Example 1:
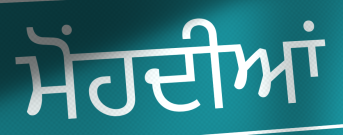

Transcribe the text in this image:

ਮੋਂਹਦੀਆਂ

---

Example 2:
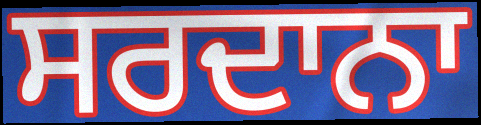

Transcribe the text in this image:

ਸਰਦਾਨਾ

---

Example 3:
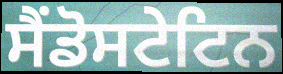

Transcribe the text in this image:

ਸੈਂਡੋਸਟੇਟਿਨ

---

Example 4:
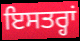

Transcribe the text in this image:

ਇਸਤਰ੍ਹਾਂ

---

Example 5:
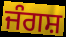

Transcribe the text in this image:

ਜੰਗਸ਼